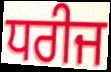
ਧਰੀਜ